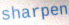
sharpen